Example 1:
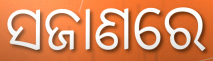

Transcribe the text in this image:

ସଜାଣରେ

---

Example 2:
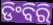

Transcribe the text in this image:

ଡିଂବିରି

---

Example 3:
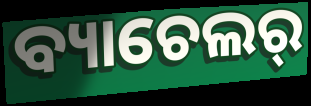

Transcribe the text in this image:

ବ୍ୟାଚେଲର୍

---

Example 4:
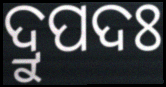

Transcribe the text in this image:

ଦ୍ରୁପଦଃ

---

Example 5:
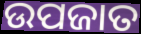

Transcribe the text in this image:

ଉପଜାତ